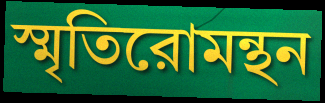
স্মৃতিরোমন্থন